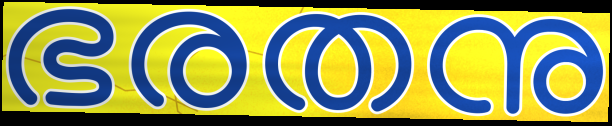
ഭരതനു